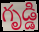
గృడ్డి